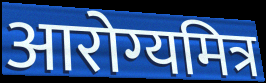
आरोग्यमित्र